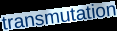
transmutation